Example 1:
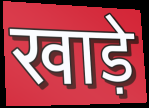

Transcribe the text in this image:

खाड़े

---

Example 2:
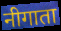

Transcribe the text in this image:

नीगाता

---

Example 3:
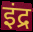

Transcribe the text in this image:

इंद्र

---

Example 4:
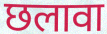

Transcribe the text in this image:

छलावा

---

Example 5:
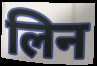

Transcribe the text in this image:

लिन